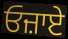
ਓਜ਼ਾਏ